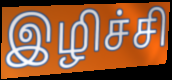
இழிச்சி